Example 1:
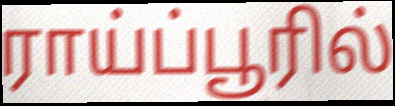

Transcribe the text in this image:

ராய்ப்பூரில்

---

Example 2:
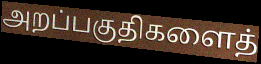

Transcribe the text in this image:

அறப்பகுதிகளைத்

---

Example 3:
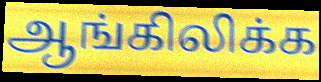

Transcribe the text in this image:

ஆங்கிலிக்க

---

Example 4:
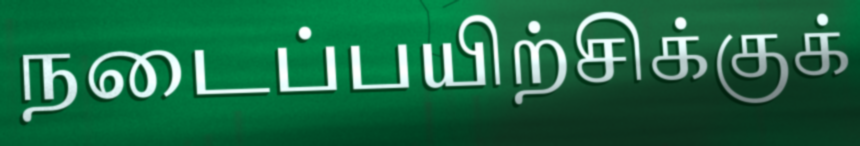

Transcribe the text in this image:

நடைப்பயிற்சிக்குக்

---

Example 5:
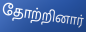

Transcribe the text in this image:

தோற்றினார்